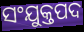
ସଂଯୁକ୍ତପଦ